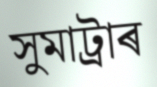
সুমাট্ৰাৰ